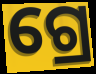
ଗ୍ରେ